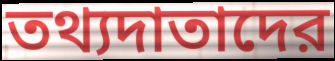
তথ্যদাতাদের